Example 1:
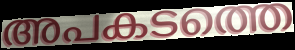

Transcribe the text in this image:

അപകടത്തെ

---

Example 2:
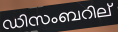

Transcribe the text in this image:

ഡിസംബറില്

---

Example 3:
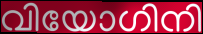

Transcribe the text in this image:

വിയോഗിനി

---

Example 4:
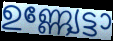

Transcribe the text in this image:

ഉണ്ണ്യേട്ടാ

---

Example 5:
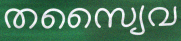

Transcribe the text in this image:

തസ്യൈവ